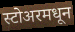
स्टोअरमधून